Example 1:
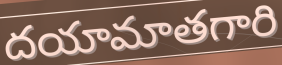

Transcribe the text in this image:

దయామాతగారి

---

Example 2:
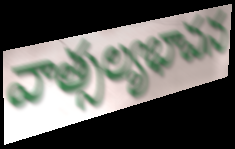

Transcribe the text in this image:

వాత్సల్యభావన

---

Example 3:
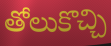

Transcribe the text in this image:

తోలుకొచ్చి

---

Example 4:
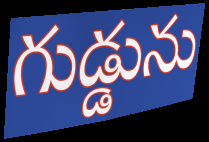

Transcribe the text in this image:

గుడ్డును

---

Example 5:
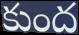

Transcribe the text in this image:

కుంద